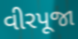
વીરપૂજા